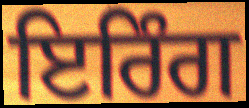
ਇਰਿੰਗ